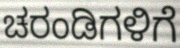
ಚರಂಡಿಗಳಿಗೆ